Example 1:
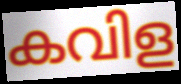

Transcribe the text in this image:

കവിള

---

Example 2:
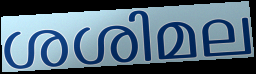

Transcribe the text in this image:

ശശിമല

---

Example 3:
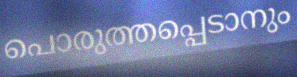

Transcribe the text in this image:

പൊരുത്തപ്പെടാനും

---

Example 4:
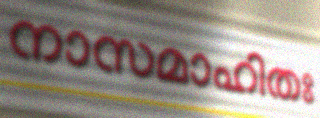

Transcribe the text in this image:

നാസമാഹിതഃ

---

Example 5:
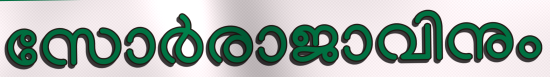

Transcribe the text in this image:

സോർരാജാവിനും